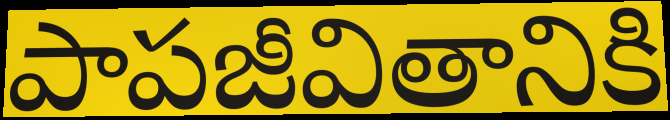
పాపజీవితానికి